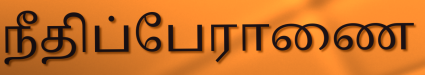
நீதிப்பேராணை